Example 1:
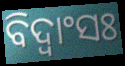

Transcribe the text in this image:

ବିଦ୍ଵାଂସଃ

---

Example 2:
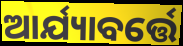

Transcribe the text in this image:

ଆର୍ଯ୍ୟାବର୍ତ୍ତେ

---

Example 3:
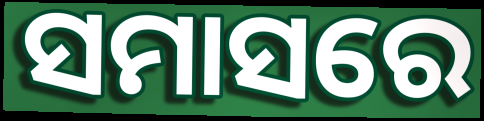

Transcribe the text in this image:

ସମାସରେ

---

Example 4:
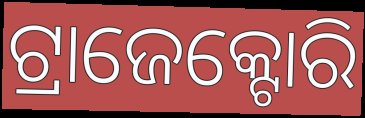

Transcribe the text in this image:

ଟ୍ରାଜେକ୍ଟୋରି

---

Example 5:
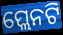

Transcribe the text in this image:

ପ୍ଲେନଟି